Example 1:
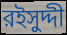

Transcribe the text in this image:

রইসুদ্দী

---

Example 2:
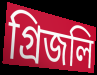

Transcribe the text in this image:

গ্রিজলি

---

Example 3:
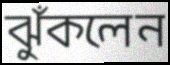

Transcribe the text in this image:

ঝুঁকলেন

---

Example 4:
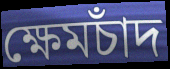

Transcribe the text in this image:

ক্ষেমচাঁদ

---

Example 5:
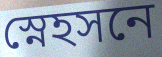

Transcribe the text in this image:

স্নেহসনে